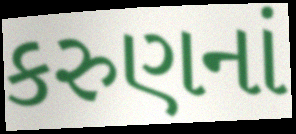
કરુણનાં